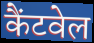
कैंटवेल